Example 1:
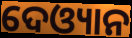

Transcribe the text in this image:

ଦେଓ୍ୟାନ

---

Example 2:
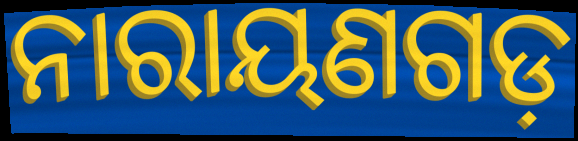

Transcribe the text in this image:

ନାରାୟଣଗଡ଼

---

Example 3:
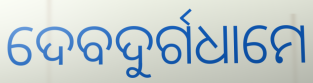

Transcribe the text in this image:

ଦେବଦୁର୍ଗଧାମେ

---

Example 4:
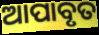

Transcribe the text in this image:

ଆପାବୃତ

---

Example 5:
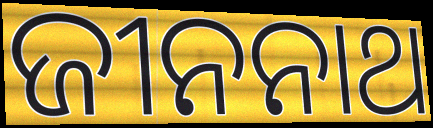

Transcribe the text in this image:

ଜୀନନାଥ